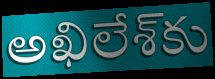
అఖిలేశ్‌కు